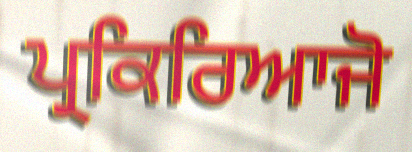
ਪ੍ਰਕਿਰਿਆਜੋ